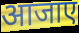
आजाए